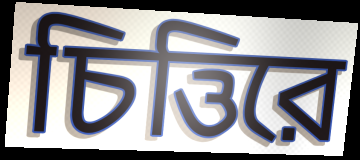
চিত্তিরে